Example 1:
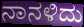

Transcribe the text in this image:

ನಾನಳಿದು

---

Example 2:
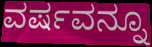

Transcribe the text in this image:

ವರ್ಷವನ್ನೂ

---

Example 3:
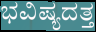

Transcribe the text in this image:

ಭವಿಷ್ಯದತ್ತ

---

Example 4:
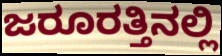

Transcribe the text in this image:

ಜರೂರತ್ತಿನಲ್ಲಿ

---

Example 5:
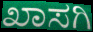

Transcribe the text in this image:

ಖಾಸಗಿ